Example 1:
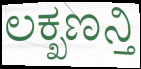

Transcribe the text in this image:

ಲಕ್ಖಣನ್ತಿ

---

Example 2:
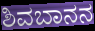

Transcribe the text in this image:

ಶಿವಬಾನನ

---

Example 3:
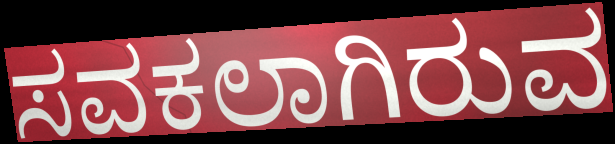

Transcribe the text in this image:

ಸವಕಲಾಗಿರುವ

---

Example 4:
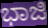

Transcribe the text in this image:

ಭಾಜಿ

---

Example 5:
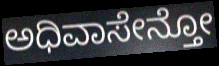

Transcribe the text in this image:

ಅಧಿವಾಸೇನ್ತೋ